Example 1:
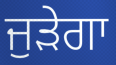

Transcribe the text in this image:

ਜੁੜੇਗਾ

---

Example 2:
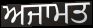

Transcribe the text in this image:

ਅਜਾਮਤ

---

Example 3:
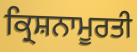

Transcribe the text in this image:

ਕ੍ਰਿਸ਼ਨਾਮੂਰਤੀ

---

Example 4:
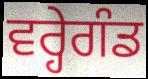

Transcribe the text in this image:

ਵਰ੍ਹੇਗੰਡ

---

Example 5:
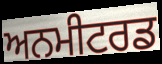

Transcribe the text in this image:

ਅਨਮੀਟਰਡ